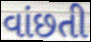
વાંછતી